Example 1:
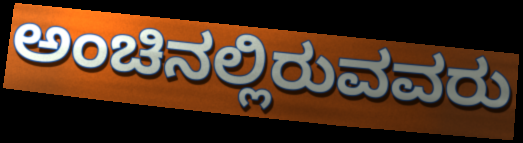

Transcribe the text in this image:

ಅಂಚಿನಲ್ಲಿರುವವರು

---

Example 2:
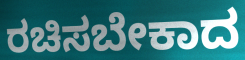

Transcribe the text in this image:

ರಚಿಸಬೇಕಾದ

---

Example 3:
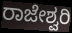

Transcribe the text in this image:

ರಾಜೇಶ್ವರಿ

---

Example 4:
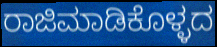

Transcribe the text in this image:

ರಾಜಿಮಾಡಿಕೊಳ್ಳದ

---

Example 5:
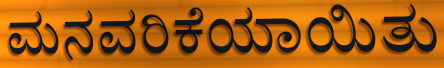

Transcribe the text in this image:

ಮನವರಿಕೆಯಾಯಿತು